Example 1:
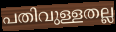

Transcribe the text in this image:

പതിവുള്ളതല്ല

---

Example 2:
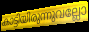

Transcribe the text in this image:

കാട്ടിയിരുന്നുവല്ലോ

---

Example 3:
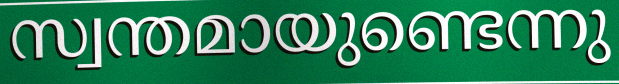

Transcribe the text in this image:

സ്വന്തമായുണ്ടെന്നു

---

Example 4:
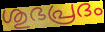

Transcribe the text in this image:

ശുഭപ്രദം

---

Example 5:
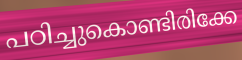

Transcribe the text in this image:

പഠിച്ചുകൊണ്ടിരിക്കേ